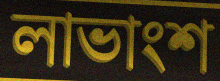
লাভাংশ